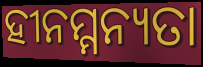
ହୀନମ୍ମନ୍ୟତା